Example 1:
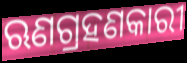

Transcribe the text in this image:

ଋଣଗ୍ରହଣକାରୀ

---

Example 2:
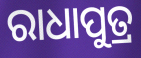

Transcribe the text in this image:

ରାଧାପୁତ୍ର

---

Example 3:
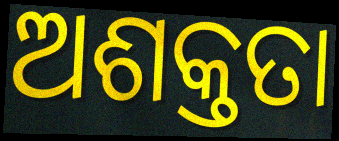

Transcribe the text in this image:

ଅଶକ୍ତତା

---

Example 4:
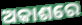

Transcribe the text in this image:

ଅକାଶରେ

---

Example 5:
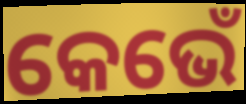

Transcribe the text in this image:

କେଭେଁ